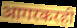
आगरकरही